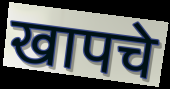
खापचे